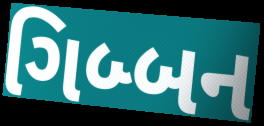
ગિબ્બન